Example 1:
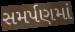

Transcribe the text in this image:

સમર્પણમાં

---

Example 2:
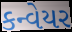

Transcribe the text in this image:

કન્વેયર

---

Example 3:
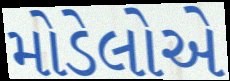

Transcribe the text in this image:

મોડેલોએ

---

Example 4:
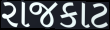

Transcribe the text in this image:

રાજકાટ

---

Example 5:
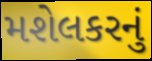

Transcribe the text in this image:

મશેલકરનું